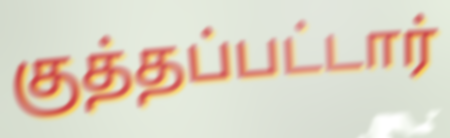
குத்தப்பட்டார்